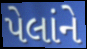
પેલાંને